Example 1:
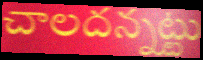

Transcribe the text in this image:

చాలదన్నట్టు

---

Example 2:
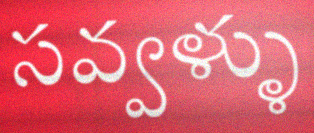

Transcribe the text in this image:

సవ్వళ్ళు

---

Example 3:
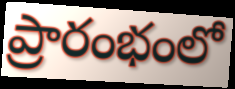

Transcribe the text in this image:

ప్రారంభంలో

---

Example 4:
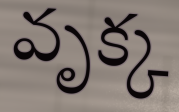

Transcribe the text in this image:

వృక్క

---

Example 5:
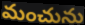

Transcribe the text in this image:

మంచును